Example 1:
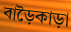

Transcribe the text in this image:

বাড়ৈকাড়া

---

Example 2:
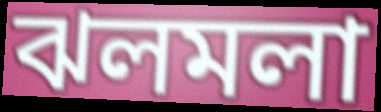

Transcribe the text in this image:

ঝলমলা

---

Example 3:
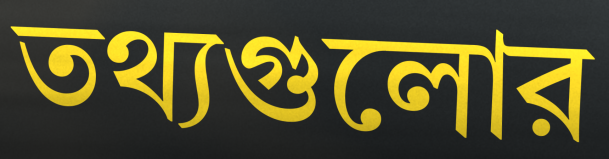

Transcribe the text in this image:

তথ্যগুলোর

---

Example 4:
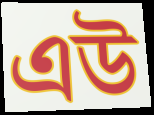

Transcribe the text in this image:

এউ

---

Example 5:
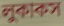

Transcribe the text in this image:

লুকাকস